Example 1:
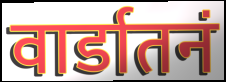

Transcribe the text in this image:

वार्डातनं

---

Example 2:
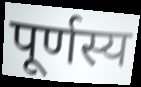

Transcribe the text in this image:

पूर्णस्य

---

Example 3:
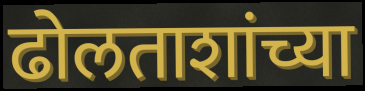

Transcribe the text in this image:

ढोलताशांच्या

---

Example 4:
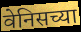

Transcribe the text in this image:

वेनिसच्या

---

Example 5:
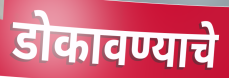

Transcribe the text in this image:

डोकावण्याचे